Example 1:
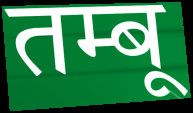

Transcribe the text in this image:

तम्बू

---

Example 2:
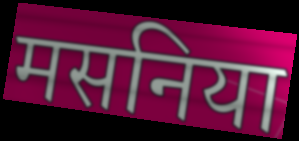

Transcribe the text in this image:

मसनिया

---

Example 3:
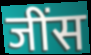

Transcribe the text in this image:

जींस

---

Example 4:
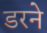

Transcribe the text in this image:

डरने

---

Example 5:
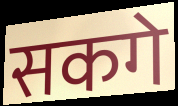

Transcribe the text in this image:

सकगे